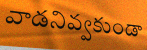
వాడనివ్వకుండా